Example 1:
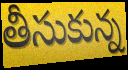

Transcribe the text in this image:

తీసుకున్న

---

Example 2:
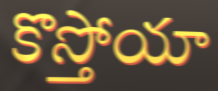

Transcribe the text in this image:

కొస్తోయా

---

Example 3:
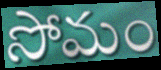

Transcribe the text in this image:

సోమం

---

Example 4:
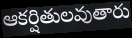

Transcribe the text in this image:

ఆకర్షితులవుతారు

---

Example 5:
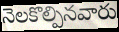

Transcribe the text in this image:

నెలకొల్పినవారు